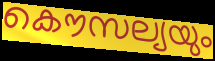
കൌസല്യയും